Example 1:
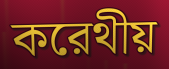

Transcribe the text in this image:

করেথীয়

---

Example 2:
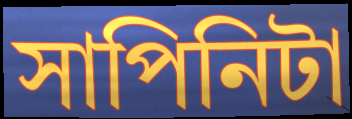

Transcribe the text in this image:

সাপিনিটা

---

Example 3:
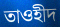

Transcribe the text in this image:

তাওহীদ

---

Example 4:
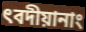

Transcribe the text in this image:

ৎবদীয়ানাং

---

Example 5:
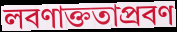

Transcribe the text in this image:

লবণাক্ততাপ্রবণ